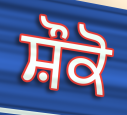
ਸ਼ੌਕੋ